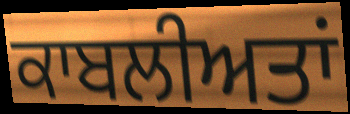
ਕਾਬਲੀਅਤਾਂ